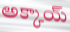
అక్కాయ్